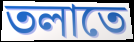
তলাতে